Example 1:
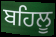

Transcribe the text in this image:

ਬਹਿਲੂ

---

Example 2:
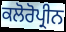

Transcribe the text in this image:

ਕਲੋਰੋਪ੍ਰੀਨ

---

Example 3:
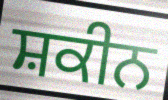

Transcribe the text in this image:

ਸ਼ਕੀਨ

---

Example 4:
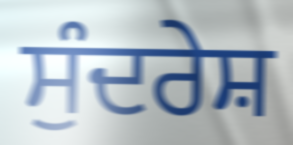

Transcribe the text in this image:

ਸੁੰਦਰੇਸ਼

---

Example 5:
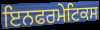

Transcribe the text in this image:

ਇਨਫਰਮੇਟਿਕਸ